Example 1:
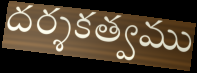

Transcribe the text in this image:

దర్శకత్వము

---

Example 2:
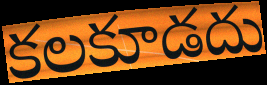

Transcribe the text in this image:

కలకూడదు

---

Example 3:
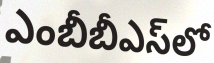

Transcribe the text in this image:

ఎంబీబీఎస్‌లో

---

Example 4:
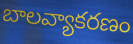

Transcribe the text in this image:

బాలవ్యాకరణం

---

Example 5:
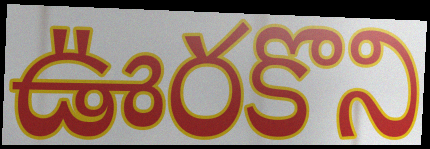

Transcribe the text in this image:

ఊరకొని